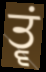
ਤ੍ਵਂ